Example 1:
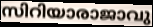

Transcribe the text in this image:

സിറിയാരാജാവു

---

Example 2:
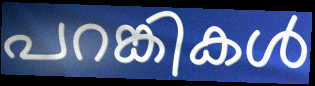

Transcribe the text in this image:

പറങ്കികൾ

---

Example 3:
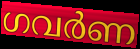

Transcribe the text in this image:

ഗവർണ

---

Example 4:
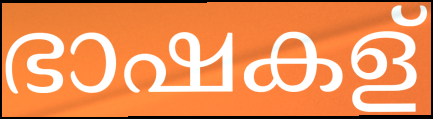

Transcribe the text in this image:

ഭാഷകള്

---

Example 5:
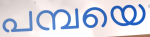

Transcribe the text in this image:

പമ്പയെ